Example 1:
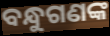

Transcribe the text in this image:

ବନ୍ଧୁଗଣଙ୍କ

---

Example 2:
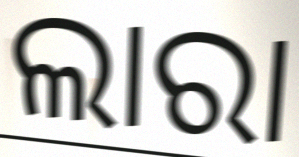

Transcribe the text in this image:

ଲାରା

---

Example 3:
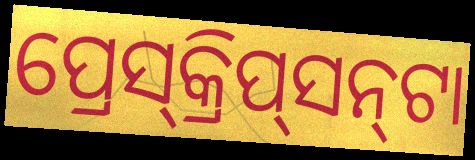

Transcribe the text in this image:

ପ୍ରେସ୍‌କ୍ରିପ୍‌ସନ୍‌ଟା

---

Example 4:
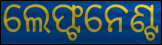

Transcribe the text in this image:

ଲେଫ୍ଟନେଣ୍ଟ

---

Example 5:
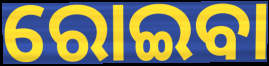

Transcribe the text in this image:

ରୋଇବା